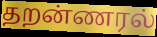
தறன்ணரல்